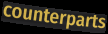
counterparts